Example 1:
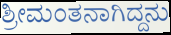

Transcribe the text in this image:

ಶ್ರೀಮಂತನಾಗಿದ್ದನು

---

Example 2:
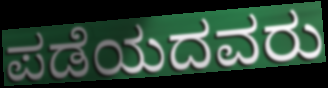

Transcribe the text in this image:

ಪಡೆಯದವರು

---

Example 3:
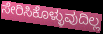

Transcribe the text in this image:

ಸೇರಿಸಿಕೊಳ್ಳುವುದಿಲ್ಲ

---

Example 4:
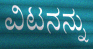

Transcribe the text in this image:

ವಿಟನನ್ನು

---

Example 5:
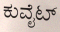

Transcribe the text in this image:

ಕುವೈಟ್